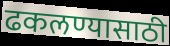
ढकलण्यासाठी